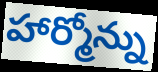
హార్మోన్ను